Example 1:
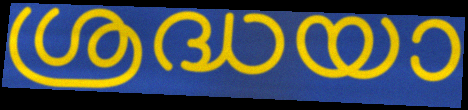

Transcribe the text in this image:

ശ്രദ്ധയാ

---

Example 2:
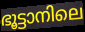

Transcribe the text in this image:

ഭൂട്ടാനിലെ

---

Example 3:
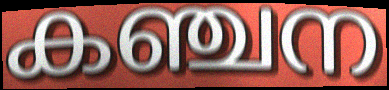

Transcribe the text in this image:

കഞ്ചന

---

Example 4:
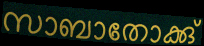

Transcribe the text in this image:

സാബാതോക്കു്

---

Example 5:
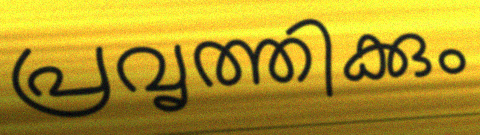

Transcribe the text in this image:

പ്രവൃത്തിക്കും